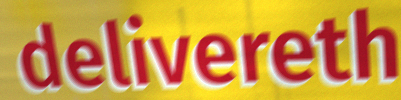
delivereth